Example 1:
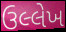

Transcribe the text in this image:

ઉલ્લેખ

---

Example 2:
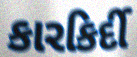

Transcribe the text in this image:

કારકિર્દી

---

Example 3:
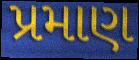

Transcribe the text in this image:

પ્રમાણ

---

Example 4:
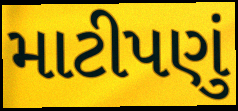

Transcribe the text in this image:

માટીપણું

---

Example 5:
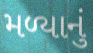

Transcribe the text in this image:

મળ્યાનું